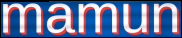
mamun